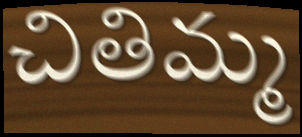
చితిమ్మ